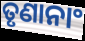
ତୃଣାନାଂ